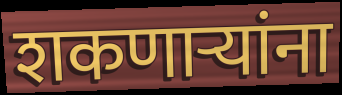
शकणार्‍यांना